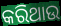
କରିଥାଉ